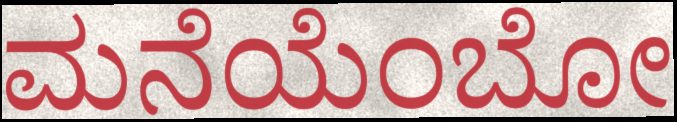
ಮನೆಯೆಂಬೋ